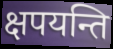
क्षपयन्ति